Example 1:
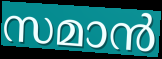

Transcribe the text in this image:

സമാൻ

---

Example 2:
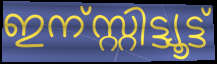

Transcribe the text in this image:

ഇന്സ്റ്റിട്ട്യൂട്ട്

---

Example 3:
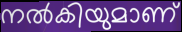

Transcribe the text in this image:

നൽകിയുമാണ്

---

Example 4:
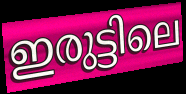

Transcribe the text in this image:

ഇരുട്ടിലെ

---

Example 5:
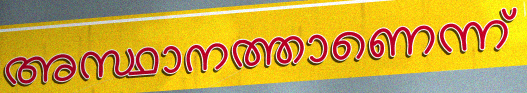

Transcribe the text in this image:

അസ്ഥാനത്താണെന്ന്